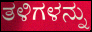
ತಳಿಗಳನ್ನು